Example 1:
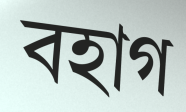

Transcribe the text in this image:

বহাগ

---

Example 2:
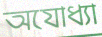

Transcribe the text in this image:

অযোধ্যা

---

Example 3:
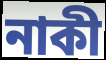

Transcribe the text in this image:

নাকী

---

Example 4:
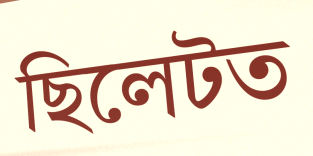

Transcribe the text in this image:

ছিলেটত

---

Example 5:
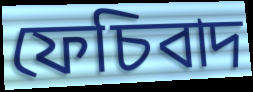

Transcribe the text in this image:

ফেচিবাদ